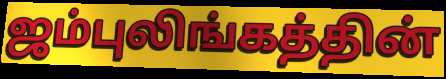
ஜம்புலிங்கத்தின்